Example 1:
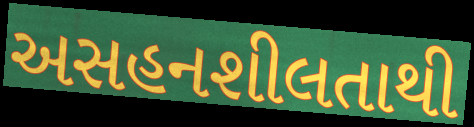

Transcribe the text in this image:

અસહનશીલતાથી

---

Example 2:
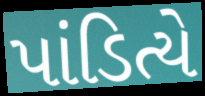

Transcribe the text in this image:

પાંડિત્યે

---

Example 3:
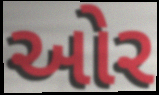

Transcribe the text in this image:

ઓર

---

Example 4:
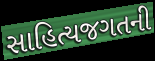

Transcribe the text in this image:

સાહિત્યજગતની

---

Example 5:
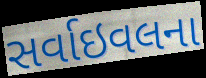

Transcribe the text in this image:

સર્વાઇવલના